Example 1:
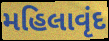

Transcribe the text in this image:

મહિલાવૃંદ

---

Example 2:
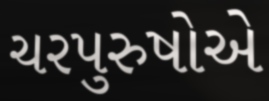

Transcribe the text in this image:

ચરપુરુષોએ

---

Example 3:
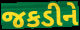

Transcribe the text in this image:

જકડીને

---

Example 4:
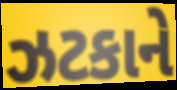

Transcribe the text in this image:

ઝટકાને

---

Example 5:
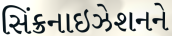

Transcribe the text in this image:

સિંક્રનાઇઝેશનને